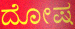
ದೋಷ